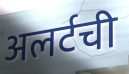
अलर्टची